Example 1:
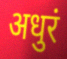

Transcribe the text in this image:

अधुरं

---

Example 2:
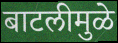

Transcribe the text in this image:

बाटलीमुळे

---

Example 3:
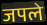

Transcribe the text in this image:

जपले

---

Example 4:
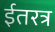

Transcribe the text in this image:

ईतरत्र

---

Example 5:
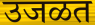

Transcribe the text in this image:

उजळत